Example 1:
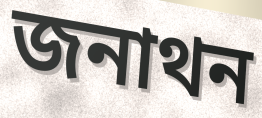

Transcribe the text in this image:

জনাথন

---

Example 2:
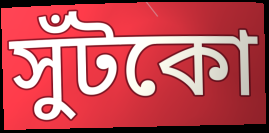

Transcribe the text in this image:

সুঁটকো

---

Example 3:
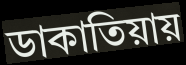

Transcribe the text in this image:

ডাকাতিয়ায়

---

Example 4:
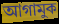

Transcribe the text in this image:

আগামুক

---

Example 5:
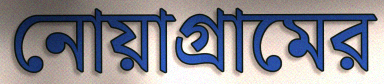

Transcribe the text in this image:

নোয়াগ্রামের